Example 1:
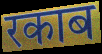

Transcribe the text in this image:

रकाब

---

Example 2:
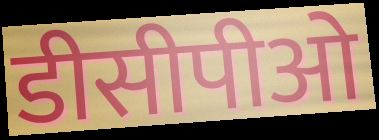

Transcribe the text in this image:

डीसीपीओ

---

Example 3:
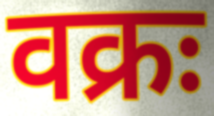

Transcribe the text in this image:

वक्रः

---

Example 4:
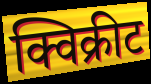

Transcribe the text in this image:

क्विक्रीट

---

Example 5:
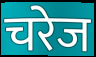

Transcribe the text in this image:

चरेज